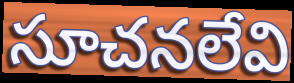
సూచనలేవి